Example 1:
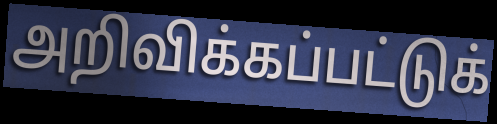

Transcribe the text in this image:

அறிவிக்கப்பட்டுக்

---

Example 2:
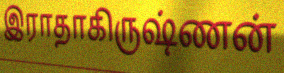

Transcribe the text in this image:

இராதாகிருஷ்ணன்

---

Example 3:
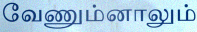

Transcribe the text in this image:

வேணும்னாலும்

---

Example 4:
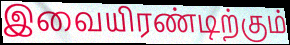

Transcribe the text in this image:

இவையிரண்டிற்கும்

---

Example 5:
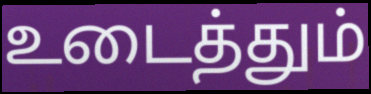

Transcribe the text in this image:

உடைத்தும்